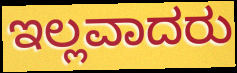
ಇಲ್ಲವಾದರು